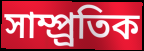
সাম্প্র্রতিক